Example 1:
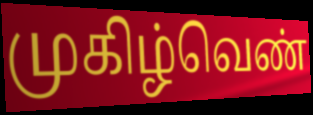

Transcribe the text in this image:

முகிழ்வெண்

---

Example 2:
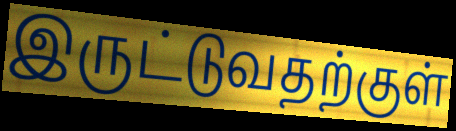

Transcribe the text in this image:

இருட்டுவதற்குள்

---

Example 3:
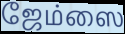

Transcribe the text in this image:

ஜேம்ஸை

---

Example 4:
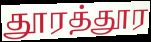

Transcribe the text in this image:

தூரத்தூர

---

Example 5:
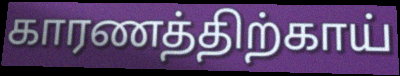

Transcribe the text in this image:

காரணத்திற்காய்